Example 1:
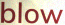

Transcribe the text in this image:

blow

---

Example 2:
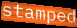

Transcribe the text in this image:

stamped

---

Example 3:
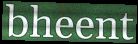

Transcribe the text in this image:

bheent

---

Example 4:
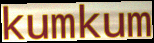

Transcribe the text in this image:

kumkum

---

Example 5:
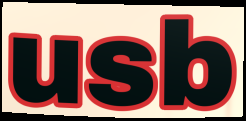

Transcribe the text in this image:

usb